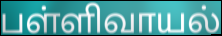
பள்ளிவாயல்